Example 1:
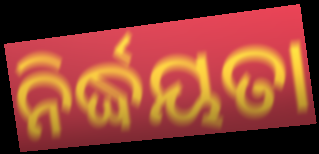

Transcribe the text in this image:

ନିର୍ଦ୍ଧୟତା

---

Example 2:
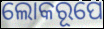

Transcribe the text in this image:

ଲୋକରୂପେ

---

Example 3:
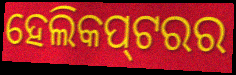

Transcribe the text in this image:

ହେଲିକପ୍‌ଟରର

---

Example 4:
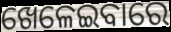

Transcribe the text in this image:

ଖେଳେଇବାରେ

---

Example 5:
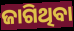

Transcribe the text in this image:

ଜାଗିଥିବା